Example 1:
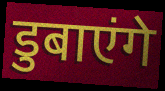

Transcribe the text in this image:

डुबाएंगे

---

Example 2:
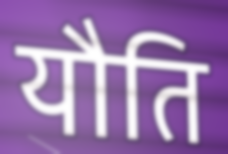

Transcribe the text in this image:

यौति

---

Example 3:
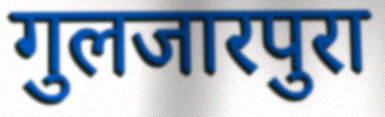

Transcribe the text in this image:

गुलजारपुरा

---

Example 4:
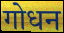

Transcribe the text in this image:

गोधन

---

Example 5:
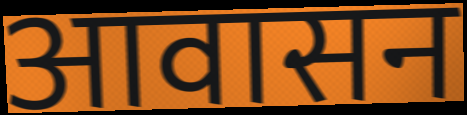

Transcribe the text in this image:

आवासन